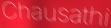
Chausathi